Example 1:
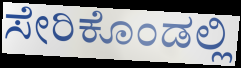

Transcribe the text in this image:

ಸೇರಿಕೊಂಡಲ್ಲಿ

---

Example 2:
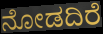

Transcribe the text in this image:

ನೋಡದಿರೆ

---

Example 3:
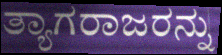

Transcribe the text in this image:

ತ್ಯಾಗರಾಜರನ್ನು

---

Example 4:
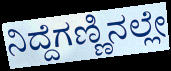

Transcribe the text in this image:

ನಿದ್ದೆಗಣ್ಣಿನಲ್ಲೇ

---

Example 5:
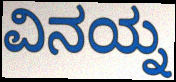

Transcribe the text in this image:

ವಿನಯ್ನ